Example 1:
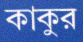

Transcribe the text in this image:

কাকুর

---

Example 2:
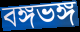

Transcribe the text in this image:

বঙ্গভঙ্গ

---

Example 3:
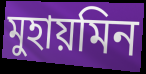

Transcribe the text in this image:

মুহায়মিন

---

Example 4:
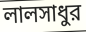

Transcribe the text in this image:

লালসাধুর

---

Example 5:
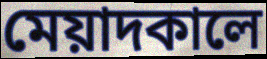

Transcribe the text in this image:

মেয়াদকালে